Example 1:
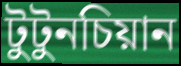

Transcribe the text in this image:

টুটুনচিয়ান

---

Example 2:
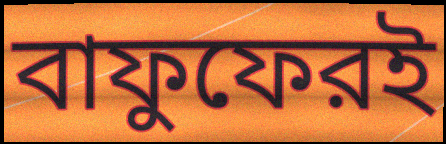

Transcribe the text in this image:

বাফুফেরই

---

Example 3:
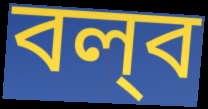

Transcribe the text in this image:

বল্‌ব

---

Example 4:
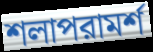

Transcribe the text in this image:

শলাপরামর্শ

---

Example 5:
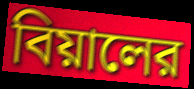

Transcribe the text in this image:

বিয়ালের